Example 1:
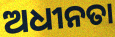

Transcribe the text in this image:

ଅଧୀନତା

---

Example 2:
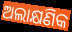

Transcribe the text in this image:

ଅଲାକ୍ଷଣିକ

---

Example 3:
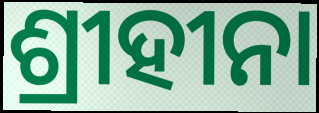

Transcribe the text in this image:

ଶ୍ରୀହୀନା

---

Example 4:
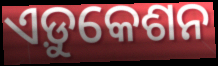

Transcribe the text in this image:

ଏଡ଼ୁକେଶନ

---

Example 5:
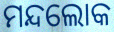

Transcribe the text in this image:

ମନ୍ଦଲୋକ